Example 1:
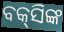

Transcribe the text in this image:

ବକ୍‌ସିଙ୍କ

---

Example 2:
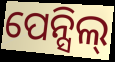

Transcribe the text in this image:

ପେନ୍ସିଲ୍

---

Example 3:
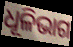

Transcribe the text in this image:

ଧୂଳିଭାଗ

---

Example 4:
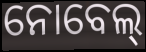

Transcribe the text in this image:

ନୋବେଲ୍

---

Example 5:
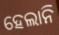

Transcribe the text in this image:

ହେଲାନି